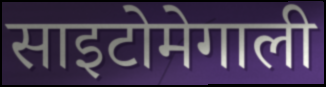
साइटोमेगाली